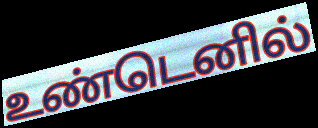
உண்டெனில்